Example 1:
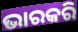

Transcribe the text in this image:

ଭାରକରି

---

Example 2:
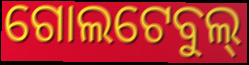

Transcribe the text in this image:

ଗୋଲଟେବୁଲ୍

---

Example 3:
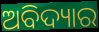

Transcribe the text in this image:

ଅବିଦ୍ୟାର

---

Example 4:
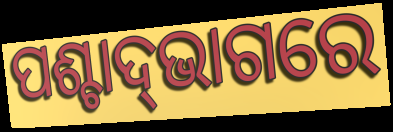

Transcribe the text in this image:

ପଶ୍ଚାଦ୍‍ଭାଗରେ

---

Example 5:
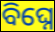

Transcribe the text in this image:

ବିଘ୍ନେ